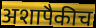
अशापैकीच